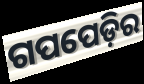
ଗପପେଡ଼ିର